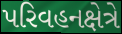
પરિવહનક્ષેત્રે